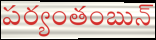
పర్యంతంబున్